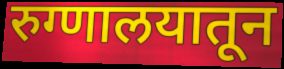
रुग्णालयातून